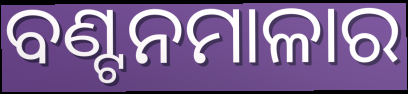
ବଣ୍ଟନମାଳାର